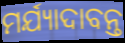
ମର୍ଯ୍ୟାଦାବନ୍ତ